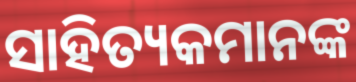
ସାହିତ୍ୟକମାନଙ୍କ